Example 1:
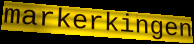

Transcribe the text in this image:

markerkingen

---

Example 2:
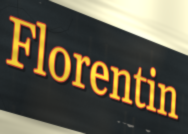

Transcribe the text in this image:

Florentin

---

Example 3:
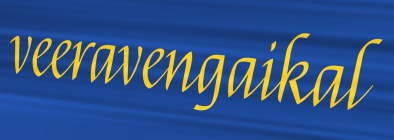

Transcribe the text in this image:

veeravengaikal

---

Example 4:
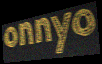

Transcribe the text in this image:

onnyo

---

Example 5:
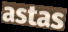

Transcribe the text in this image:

astas